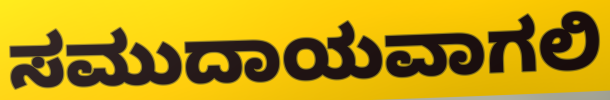
ಸಮುದಾಯವಾಗಲಿ